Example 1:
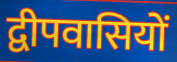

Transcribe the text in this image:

द्वीपवासियों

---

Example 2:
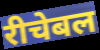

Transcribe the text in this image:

रीचेबल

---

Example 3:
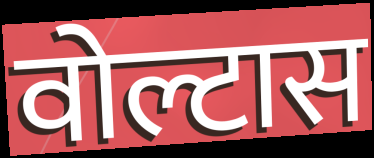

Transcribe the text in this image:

वोल्टास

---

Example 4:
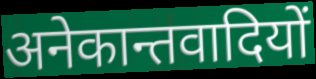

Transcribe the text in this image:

अनेकान्तवादियों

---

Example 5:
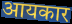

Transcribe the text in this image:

आयकार